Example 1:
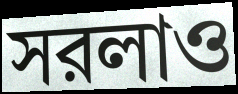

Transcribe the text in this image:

সরলাও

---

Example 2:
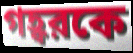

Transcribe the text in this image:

গহ্বরকে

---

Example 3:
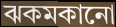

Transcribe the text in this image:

ঝকমকানো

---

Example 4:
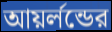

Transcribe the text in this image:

আয়র্লন্ডের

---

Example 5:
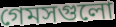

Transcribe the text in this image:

গেমসগুলো